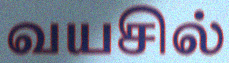
வயசில்